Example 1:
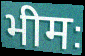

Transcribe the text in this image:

भीमः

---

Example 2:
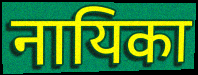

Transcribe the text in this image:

नायिका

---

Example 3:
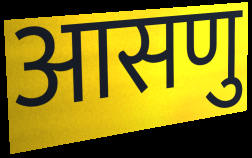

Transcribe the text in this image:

आसणु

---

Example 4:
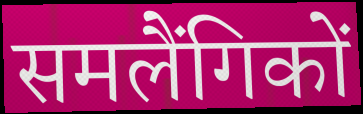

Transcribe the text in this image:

समलैंगिकों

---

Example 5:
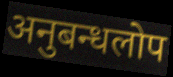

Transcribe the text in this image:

अनुबन्धलोप